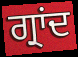
ਗ੍ਰਾਂਦ